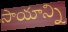
సాయాన్ని